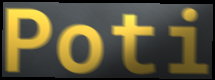
Poti